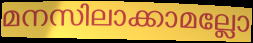
മനസിലാക്കാമല്ലോ